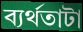
ব্যর্থতাটা